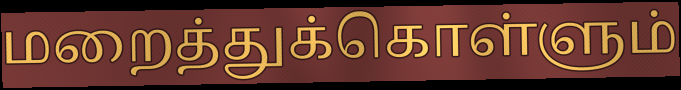
மறைத்துக்கொள்ளும்